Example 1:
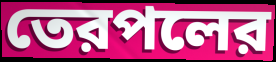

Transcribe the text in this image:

তেরপলের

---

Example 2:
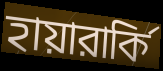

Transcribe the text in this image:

হায়ারার্কি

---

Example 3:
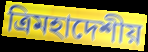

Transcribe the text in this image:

ত্রিমহাদেশীয়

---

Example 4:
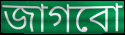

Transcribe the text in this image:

জাগবো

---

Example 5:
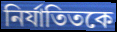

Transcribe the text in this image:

নির্যাতিতকে